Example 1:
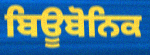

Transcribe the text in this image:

ਬਿਊਬੋਨਿਕ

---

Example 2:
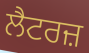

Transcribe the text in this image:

ਲੈਟਰਜ਼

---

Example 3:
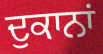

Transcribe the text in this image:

ਦੁਕਾਨਾਂ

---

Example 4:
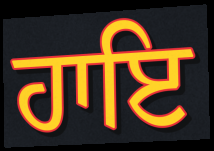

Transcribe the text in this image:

ਹਾਇ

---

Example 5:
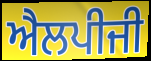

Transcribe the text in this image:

ਐਲਪੀਜੀ